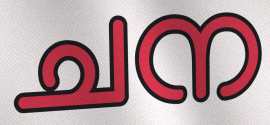
ചന